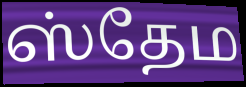
ஸ்தேம